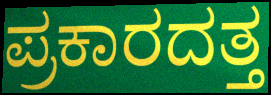
ಪ್ರಕಾರದತ್ತ